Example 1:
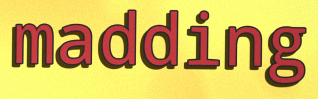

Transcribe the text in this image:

madding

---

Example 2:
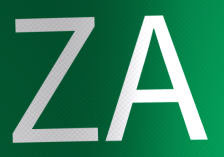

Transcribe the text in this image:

ZA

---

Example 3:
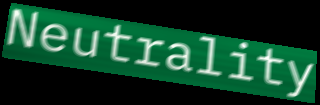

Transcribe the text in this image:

Neutrality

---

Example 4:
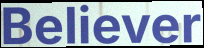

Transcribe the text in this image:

Believer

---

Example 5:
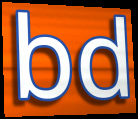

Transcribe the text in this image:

bd